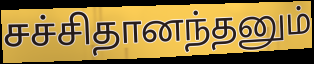
சச்சிதானந்தனும்